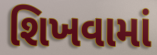
શિખવામાં